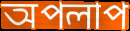
অপলাপ